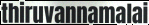
thiruvannamalai